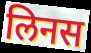
लिनस